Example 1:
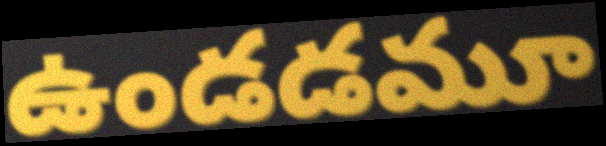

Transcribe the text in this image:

ఉండడమూ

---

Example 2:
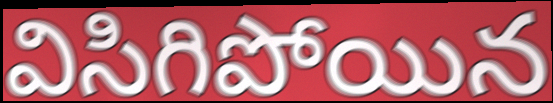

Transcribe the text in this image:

విసిగిపోయిన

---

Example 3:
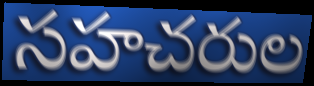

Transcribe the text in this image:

సహచరుల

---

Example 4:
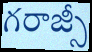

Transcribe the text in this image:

గరాజ్సీ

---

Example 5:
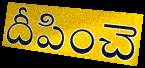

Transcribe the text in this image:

దీపించె